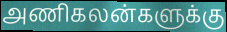
அணிகலன்களுக்கு